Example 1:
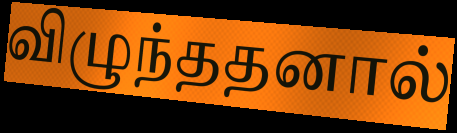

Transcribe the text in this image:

விழுந்ததனால்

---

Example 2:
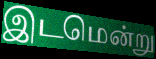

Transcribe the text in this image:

இடமென்று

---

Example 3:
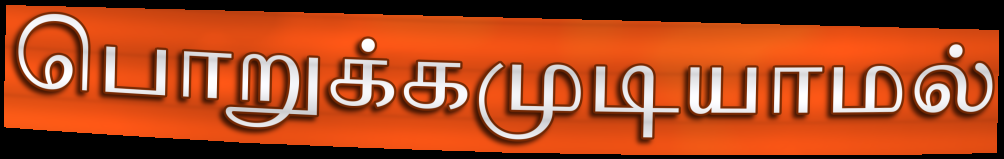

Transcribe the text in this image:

பொறுக்கமுடியாமல்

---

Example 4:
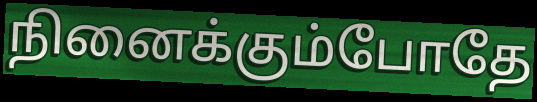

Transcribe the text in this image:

நினைக்கும்போதே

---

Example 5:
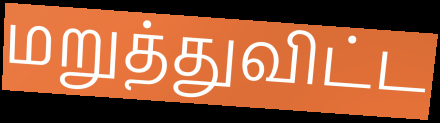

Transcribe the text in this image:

மறுத்துவிட்ட